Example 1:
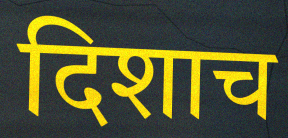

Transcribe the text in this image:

दिशाच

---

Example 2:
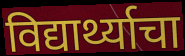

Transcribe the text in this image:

विद्यार्थ्याचा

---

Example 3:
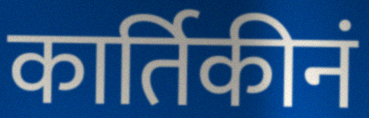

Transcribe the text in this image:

कार्तिकीनं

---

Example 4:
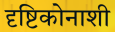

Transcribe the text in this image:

दृष्टिकोनाशी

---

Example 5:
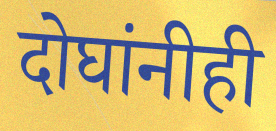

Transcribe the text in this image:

दोघांनीही